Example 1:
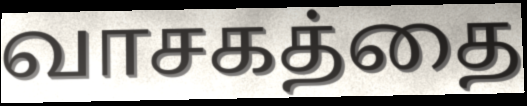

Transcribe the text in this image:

வாசகத்தை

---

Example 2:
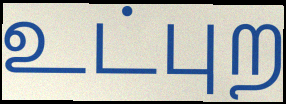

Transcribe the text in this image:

உட்புற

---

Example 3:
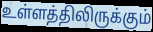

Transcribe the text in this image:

உள்ளத்திலிருக்கும்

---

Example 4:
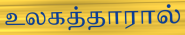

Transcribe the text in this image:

உலகத்தாரால்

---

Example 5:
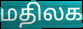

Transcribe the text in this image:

மதிலக